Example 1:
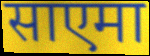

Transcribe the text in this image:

साएमा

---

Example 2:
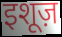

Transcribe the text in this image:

इशूज़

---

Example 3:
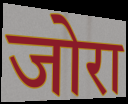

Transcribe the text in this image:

जोरा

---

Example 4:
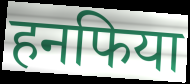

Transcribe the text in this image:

हनफिया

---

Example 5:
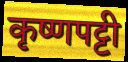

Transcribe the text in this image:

कृष्णपट्टी